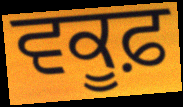
ਵਕੂਫ਼